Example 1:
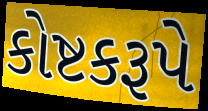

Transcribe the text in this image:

કોષ્ટકરૂપે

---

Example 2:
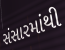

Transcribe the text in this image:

સંસારમાંથી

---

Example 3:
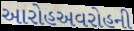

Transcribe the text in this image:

આરોહઅવરોહની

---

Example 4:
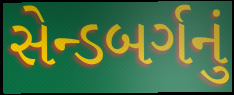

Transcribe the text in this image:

સેન્ડબર્ગનું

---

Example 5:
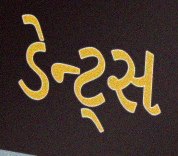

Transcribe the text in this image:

ડેન્ટ્સ